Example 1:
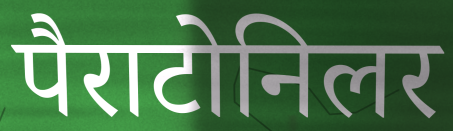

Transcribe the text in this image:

पैराटोनिलर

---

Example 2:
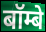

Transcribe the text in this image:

बॉम्बे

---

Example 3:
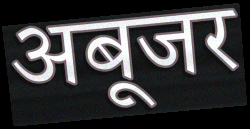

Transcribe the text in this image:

अबूजर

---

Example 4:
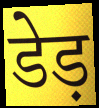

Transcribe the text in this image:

डेड़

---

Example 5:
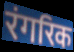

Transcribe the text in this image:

रंगरिक